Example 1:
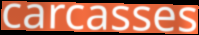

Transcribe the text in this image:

carcasses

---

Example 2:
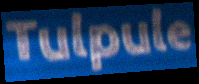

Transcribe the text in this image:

Tulpule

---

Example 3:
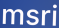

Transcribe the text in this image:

msri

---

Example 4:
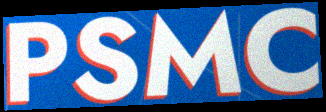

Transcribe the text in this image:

PSMC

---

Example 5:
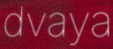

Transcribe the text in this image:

dvaya